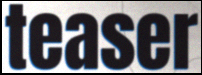
teaser